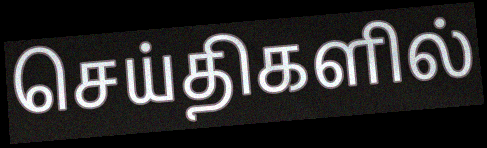
செய்திகளில்